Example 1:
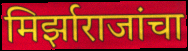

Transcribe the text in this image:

मिर्झाराजांचा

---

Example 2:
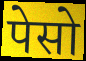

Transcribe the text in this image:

पेसो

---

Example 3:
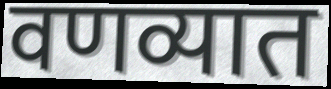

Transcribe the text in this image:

वणव्यात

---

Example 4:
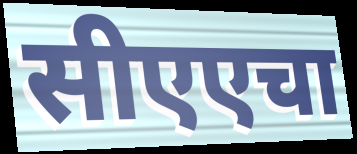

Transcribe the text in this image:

सीएएचा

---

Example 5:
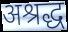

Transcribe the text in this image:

अश्रद्ध